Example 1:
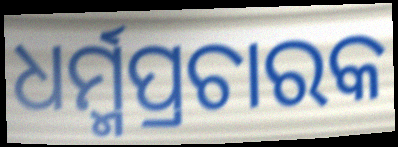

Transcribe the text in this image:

ଧର୍ମ୍ମପ୍ରଚାରକ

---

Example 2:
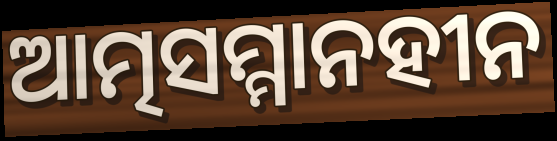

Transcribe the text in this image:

ଆତ୍ମସମ୍ମାନହୀନ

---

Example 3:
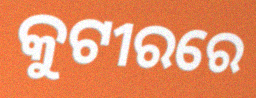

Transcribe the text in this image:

କୁଟୀରରେ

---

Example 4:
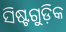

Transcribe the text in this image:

ସିଷ୍ଟଗୁଡ଼ିକ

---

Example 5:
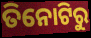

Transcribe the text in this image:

ତିନୋଟିରୁ